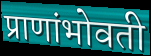
प्राणांभोवती